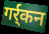
गर्र्कन